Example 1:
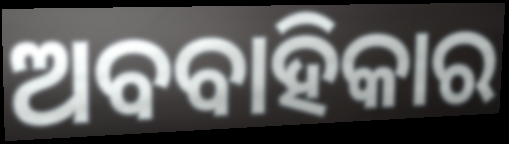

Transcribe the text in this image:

ଅବବାହିକାର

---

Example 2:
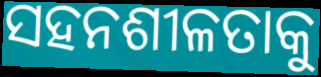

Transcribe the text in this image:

ସହନଶୀଳତାକୁ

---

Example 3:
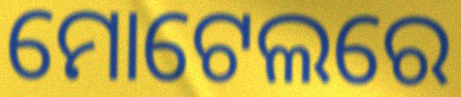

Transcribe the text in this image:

ମୋଟେଲରେ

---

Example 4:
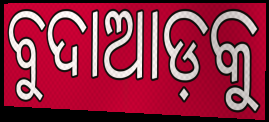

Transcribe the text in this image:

ବୁଦାଆଡ଼କୁ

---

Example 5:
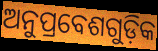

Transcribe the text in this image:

ଅନୁପ୍ରବେଶଗୁଡ଼ିକ